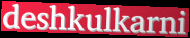
deshkulkarni